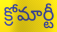
క్రోమార్టీ